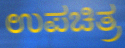
ಉಪಚಿತ್ರ